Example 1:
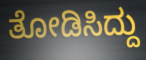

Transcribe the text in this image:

ತೋಡಿಸಿದ್ದು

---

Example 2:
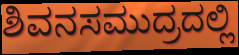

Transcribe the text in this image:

ಶಿವನಸಮುದ್ರದಲ್ಲಿ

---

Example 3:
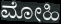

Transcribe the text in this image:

ಮೋಹಿ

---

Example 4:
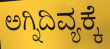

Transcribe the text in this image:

ಅಗ್ನಿದಿವ್ಯಕ್ಕೆ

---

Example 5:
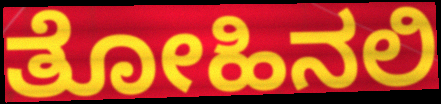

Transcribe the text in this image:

ತೋಹಿನಲಿ